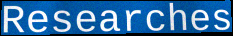
Researches